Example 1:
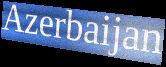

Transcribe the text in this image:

Azerbaijan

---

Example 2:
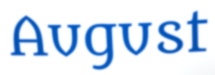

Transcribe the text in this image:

August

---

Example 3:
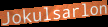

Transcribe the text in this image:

Jokulsarlon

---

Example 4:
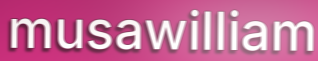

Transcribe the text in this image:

musawilliam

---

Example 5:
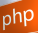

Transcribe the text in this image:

php